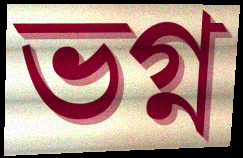
ভগ্ন